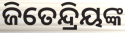
ଜିତେନ୍ଦ୍ରିୟଙ୍କ